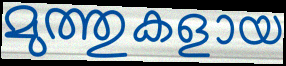
മുത്തുകളായ